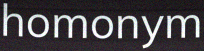
homonym